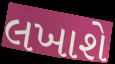
લખાશે